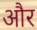
और